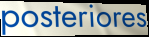
posteriores